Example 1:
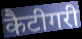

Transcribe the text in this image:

कैटीगरी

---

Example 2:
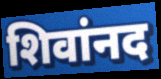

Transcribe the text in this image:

शिवांनद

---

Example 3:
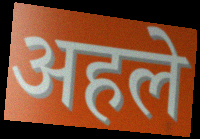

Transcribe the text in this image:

अहले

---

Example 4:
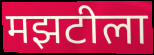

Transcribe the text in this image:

मझटीला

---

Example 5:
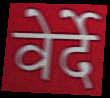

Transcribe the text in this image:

वेर्दे